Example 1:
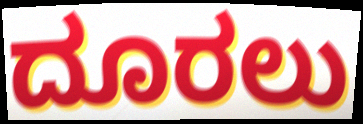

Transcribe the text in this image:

ದೂರಲು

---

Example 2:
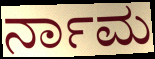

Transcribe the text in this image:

ರ್ನಾಮ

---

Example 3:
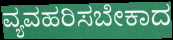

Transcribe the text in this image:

ವ್ಯವಹರಿಸಬೇಕಾದ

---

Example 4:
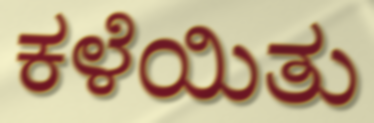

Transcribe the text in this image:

ಕಳೆಯಿತು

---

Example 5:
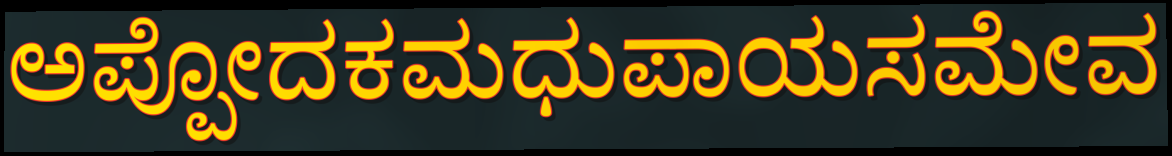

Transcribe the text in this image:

ಅಪ್ಪೋದಕಮಧುಪಾಯಸಮೇವ